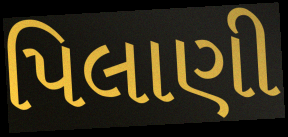
પિલાણી